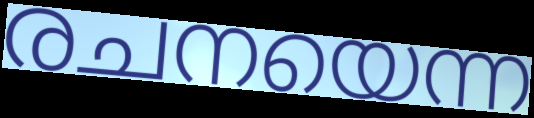
രചനയെന്ന